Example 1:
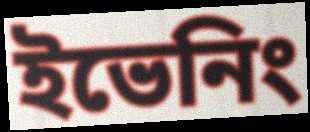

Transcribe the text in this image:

ইভেনিং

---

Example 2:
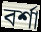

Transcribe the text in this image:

বর্শা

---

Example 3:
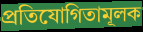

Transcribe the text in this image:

প্রতিযোগিতামূলক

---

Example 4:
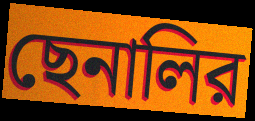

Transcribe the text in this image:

ছেনালির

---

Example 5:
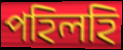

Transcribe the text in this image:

পহিলহি